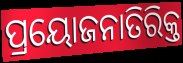
ପ୍ରୟୋଜନାତିରିକ୍ତ